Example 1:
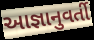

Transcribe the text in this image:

આજ્ઞાનુવર્તી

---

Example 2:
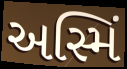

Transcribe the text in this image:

અસ્મિં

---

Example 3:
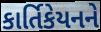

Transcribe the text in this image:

કાર્તિકેયનને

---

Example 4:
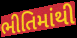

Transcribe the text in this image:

ભીતિમાંથી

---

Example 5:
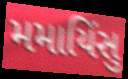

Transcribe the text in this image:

મમાયિંસુ